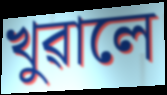
খুৱালে